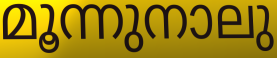
മൂന്നുനാലു